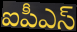
ఐపీఎస్